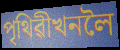
পৃথিৱীখনলৈ